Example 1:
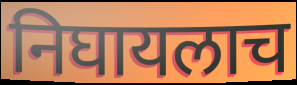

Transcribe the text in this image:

निघायलाच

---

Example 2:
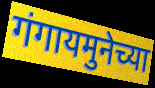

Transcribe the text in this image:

गंगायमुनेच्या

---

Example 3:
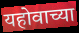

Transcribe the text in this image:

यहोवाच्या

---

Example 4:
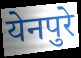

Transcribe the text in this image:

येनपुरे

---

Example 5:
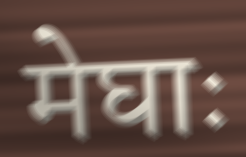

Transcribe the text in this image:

मेघाः